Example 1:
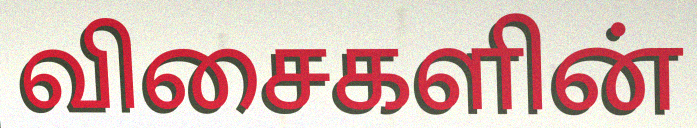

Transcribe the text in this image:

விசைகளின்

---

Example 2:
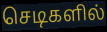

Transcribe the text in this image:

செடிகளில்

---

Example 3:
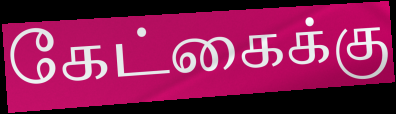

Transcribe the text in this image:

கேட்கைக்கு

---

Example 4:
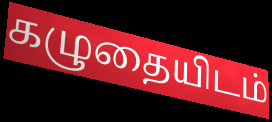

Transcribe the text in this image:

கழுதையிடம்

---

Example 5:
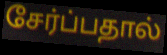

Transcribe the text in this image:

சேர்ப்பதால்